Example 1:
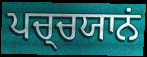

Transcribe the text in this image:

ਪਚ੍ਚਯਾਨਂ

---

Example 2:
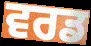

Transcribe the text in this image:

ਵਰਡ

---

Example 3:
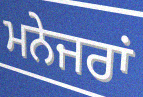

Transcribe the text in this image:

ਮਨੇਜਰਾਂ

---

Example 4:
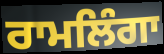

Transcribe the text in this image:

ਰਾਮਲਿੰਗਾ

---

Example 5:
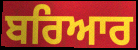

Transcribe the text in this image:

ਬਰਿਆਰ